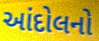
આંદોલનો